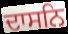
ਦਾਸਨਿ